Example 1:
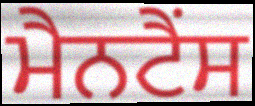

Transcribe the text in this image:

ਮੈਨਟੈਂਸ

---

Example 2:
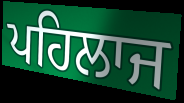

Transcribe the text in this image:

ਪਹਿਲਾਜ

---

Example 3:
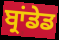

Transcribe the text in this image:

ਬ੍ਰਾਂਡੇਡ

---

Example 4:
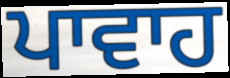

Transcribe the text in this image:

ਪਾਵਾਹ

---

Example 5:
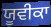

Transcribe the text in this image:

ਯੂਵੀਕਾ